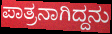
ಪಾತ್ರನಾಗಿದ್ದನು